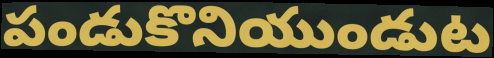
పండుకొనియుండుట